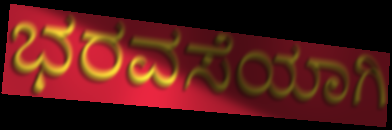
ಭರವಸೆಯಾಗಿ